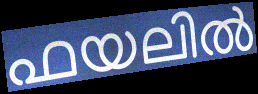
ഫയലിൽ